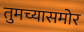
तुमच्यासमोर